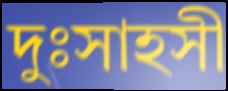
দুঃসাহসী